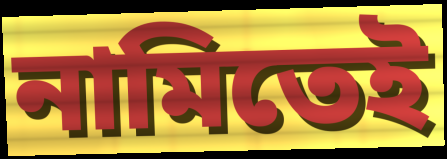
নামিতেই